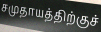
சமுதாயத்திற்குச்